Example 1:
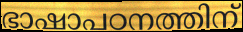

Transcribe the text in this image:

ഭാഷാപഠനത്തിന്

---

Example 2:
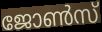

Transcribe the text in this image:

ജോൺസ്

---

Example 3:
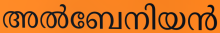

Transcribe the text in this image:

അൽബേനിയൻ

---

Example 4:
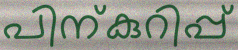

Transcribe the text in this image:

പിന്കുറിപ്പ്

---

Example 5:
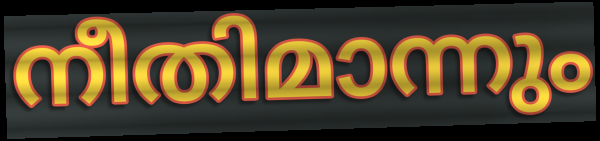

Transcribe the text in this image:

നീതിമാന്നും